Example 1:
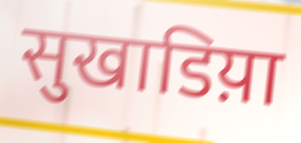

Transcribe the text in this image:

सुखाडिय़ा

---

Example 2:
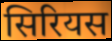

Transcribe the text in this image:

सिरियस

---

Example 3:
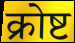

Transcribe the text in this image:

क्रोष्ट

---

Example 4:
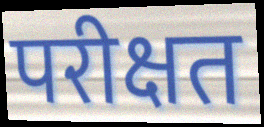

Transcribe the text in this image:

परीक्षत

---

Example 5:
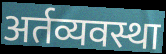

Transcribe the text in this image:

अर्तव्यवस्था